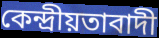
কেন্দ্ৰীয়তাবাদী